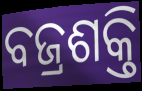
ବଜ୍ରଶକ୍ତି